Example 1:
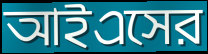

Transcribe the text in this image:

আইএসের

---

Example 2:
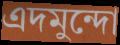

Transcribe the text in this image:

এদমুন্দো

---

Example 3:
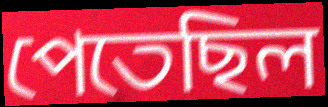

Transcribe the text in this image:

পেতেছিল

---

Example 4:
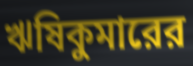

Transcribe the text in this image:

ঋষিকুমারের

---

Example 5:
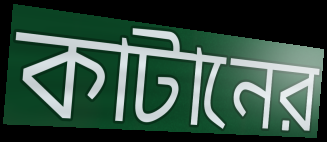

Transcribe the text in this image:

কাটানের